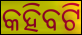
କହିବଟି